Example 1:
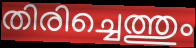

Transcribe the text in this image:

തിരിച്ചെത്തും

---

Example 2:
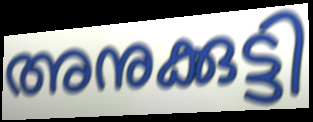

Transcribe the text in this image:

അനുക്കുട്ടി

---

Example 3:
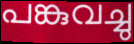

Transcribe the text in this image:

പങ്കുവച്ചു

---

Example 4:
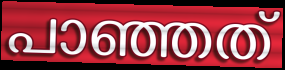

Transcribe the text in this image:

പാഞ്ഞത്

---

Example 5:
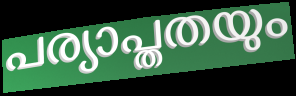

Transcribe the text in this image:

പര്യാപ്തതയും